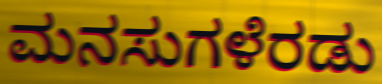
ಮನಸುಗಳೆರಡು